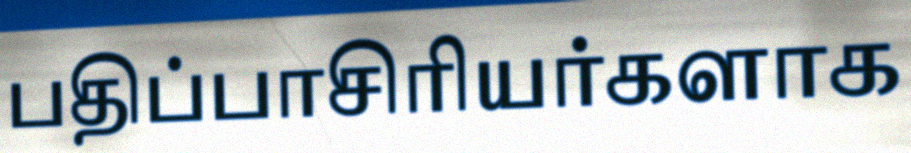
பதிப்பாசிரியர்களாக